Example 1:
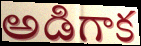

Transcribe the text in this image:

అడిగాక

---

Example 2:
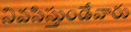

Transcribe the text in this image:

నివసిస్తుండేవారు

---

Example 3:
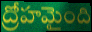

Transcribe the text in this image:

ద్రోహమైంది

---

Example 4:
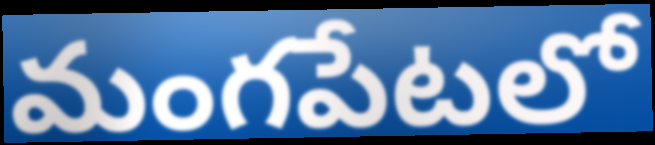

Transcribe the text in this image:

మంగపేటలో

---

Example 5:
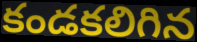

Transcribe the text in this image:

కండకలిగిన